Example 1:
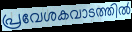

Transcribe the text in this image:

പ്രവേശകവാടത്തിൽ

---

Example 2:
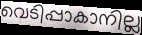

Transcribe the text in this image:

വെടിപ്പാകാനില്ല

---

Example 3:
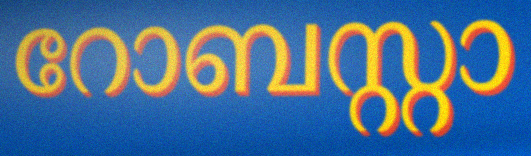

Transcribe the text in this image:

റോബസ്റ്റാ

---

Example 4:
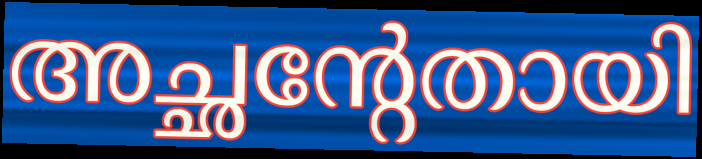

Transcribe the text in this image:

അച്ഛന്റേതായി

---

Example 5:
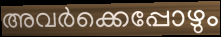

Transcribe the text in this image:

അവർക്കെപ്പോഴും